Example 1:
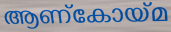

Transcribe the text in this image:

ആണ്കോയ്മ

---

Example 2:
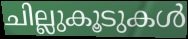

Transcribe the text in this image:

ചില്ലുകൂടുകൾ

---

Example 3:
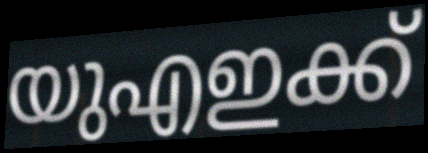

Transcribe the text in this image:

യുഎഇക്ക്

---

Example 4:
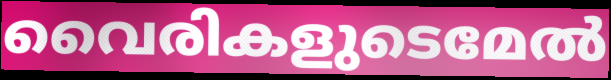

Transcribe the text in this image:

വൈരികളുടെമേൽ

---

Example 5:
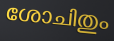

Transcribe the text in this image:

ശോചിതും